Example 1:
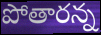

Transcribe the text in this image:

పోతారన్న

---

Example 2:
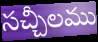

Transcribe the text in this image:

సచ్చీలము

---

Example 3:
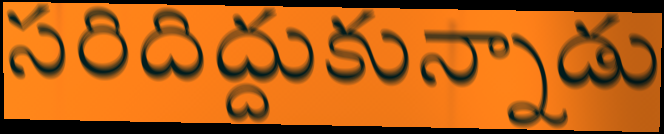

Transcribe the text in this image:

సరిదిద్దుకున్నాడు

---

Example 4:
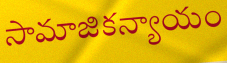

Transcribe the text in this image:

సామాజికన్యాయం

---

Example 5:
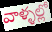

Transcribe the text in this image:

వాళ్ళల్లో